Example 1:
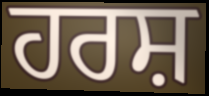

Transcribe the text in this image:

ਹਰਸ਼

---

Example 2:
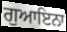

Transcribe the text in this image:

ਗੁਆਇਨਾ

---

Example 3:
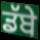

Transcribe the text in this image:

ਡੱਬੇ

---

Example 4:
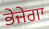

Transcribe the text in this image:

ਭੇਜੇਗਾ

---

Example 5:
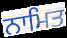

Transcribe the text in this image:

ਨਾਮਿਤ